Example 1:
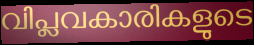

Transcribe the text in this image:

വിപ്ലവകാരികളുടെ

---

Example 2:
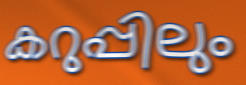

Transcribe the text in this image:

കറുപ്പിലും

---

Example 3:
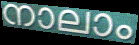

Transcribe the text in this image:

നാലാം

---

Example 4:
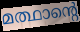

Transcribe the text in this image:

മത്ഥാന്റെ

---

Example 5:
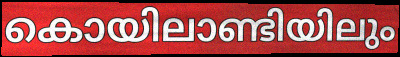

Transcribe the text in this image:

കൊയിലാണ്ടിയിലും